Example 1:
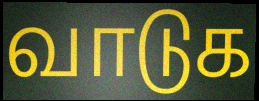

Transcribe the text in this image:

வாடுக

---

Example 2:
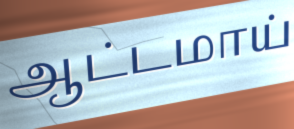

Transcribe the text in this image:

ஆட்டமாய்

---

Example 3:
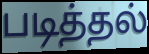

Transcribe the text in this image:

படித்தல்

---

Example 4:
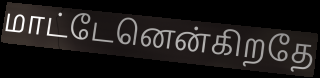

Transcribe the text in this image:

மாட்டேனென்கிறதே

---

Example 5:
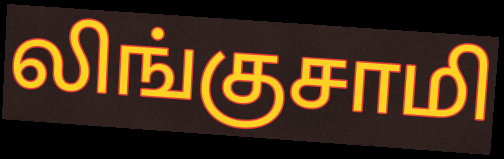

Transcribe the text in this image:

லிங்குசாமி